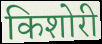
किशोरी